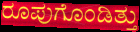
ರೂಪುಗೊಂಡಿತ್ತು